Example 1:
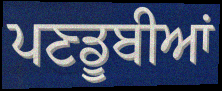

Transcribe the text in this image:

ਪਣਡੂਬੀਆਂ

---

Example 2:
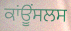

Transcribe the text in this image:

ਕਾਂਊਂਸਲਸ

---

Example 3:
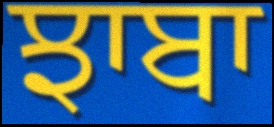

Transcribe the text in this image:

ਝਾਬਾ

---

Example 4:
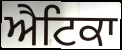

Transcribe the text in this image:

ਐਟਿਕਾ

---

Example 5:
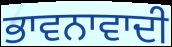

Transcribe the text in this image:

ਭਾਵਨਾਵਾਦੀ